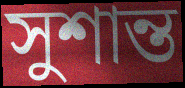
সুশান্ত